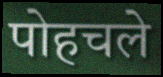
पोहचले